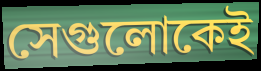
সেগুলোকেই